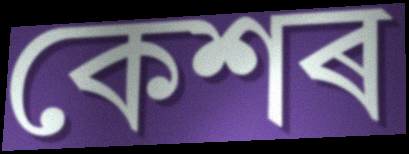
কেশৰ